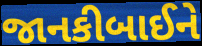
જાનકીબાઈને